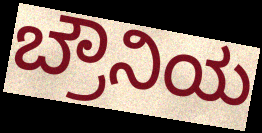
ಬ್ರೌನಿಯ